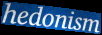
hedonism